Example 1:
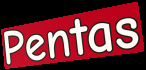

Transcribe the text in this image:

Pentas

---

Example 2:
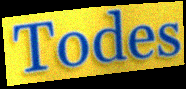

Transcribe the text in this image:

Todes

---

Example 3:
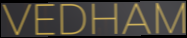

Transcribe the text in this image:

VEDHAM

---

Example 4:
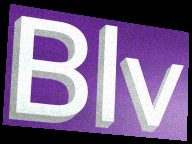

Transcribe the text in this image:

Blv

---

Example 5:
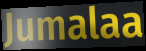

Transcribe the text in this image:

Jumalaa